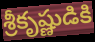
శ్రీకృష్ణుడికి